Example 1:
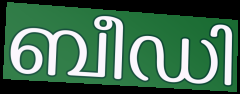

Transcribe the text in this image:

ബീഡി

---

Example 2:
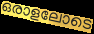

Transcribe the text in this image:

ഒരാളലോടെ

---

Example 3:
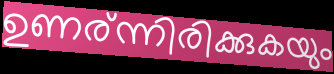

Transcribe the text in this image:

ഉണര്ന്നിരിക്കുകയും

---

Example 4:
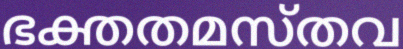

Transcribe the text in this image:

ഭക്തതമസ്തവ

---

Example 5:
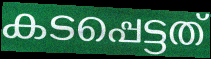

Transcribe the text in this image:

കടപ്പെട്ടത്